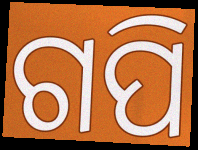
ଗପି